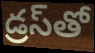
డ్రస్‌తో